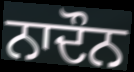
ਨਾਦੌਨ